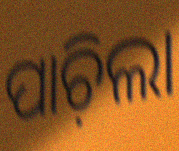
ପାଚ଼ିଲା